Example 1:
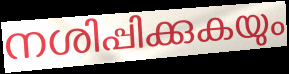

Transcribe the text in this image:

നശിപ്പിക്കുകയും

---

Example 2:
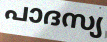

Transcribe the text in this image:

പാദസ്യ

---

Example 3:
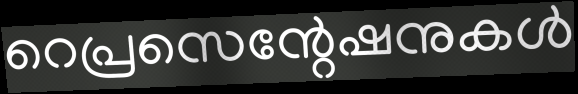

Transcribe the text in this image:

റെപ്രസെന്റേഷനുകൾ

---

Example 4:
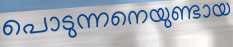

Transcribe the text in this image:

പൊടുന്നനെയുണ്ടായ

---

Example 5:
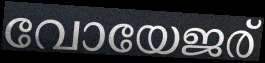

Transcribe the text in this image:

വോയേജര്